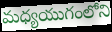
మధ్యయుగంలోని